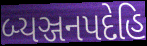
બ્યઞ્જનપદેહિ